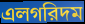
এলগরিদম